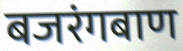
बजरंगबाण